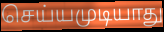
செய்யமுடியாது